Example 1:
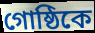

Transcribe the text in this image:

গোষ্ঠিকে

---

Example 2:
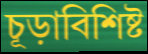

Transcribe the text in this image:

চূড়াবিশিষ্ট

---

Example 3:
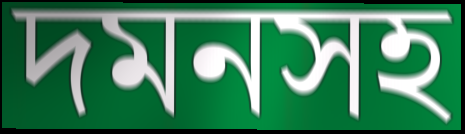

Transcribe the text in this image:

দমনসহ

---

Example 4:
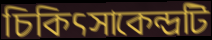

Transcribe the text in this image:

চিকিৎসাকেন্দ্রটি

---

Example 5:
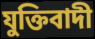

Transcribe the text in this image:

যুক্তিবাদী